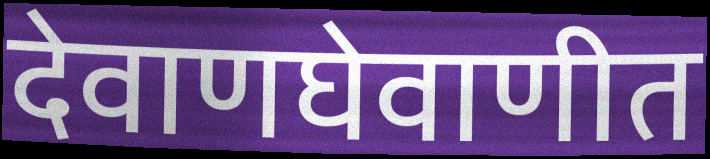
देवाणघेवाणीत